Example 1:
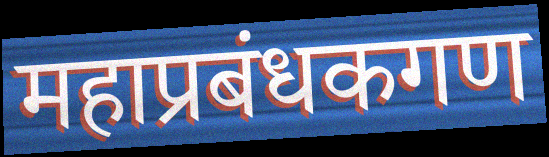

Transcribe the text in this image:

महाप्रबंधकगण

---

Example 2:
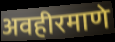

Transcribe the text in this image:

अवहीरमाणे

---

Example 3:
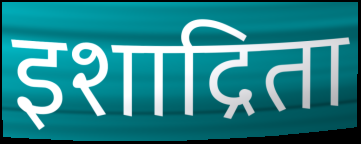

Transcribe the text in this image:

इशाद्रिता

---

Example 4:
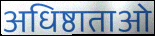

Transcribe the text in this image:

अधिष्ठाताओ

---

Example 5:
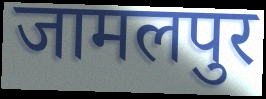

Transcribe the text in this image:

जामलपुर